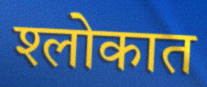
श्लोकात